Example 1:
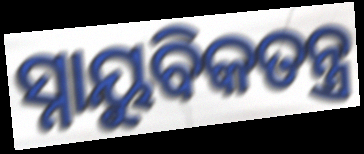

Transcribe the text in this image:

ସ୍ନାୟୁବିକତନ୍ତ୍ର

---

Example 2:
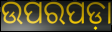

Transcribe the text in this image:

ଉପରପଡ଼ା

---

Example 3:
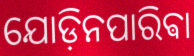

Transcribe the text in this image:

ଯୋଡ଼ିନପାରିଵା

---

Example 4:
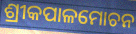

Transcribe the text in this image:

ଶ୍ରୀକପାଳମୋଚନ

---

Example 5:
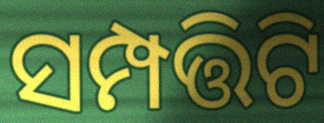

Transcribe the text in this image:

ସମ୍ପତ୍ତିଟି